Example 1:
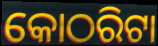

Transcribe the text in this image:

କୋଠରିଟା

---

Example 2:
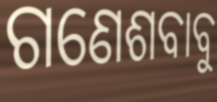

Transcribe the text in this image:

ଗଣେଶବାବୁ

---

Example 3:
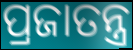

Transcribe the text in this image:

ପ୍ରଜାତନ୍ତ୍ର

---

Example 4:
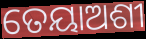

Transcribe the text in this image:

ତେୟାଅଶୀ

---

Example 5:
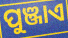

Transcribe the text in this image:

ପୁଞ୍ଜାଏ